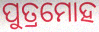
ପୁତ୍ରମୋହ